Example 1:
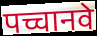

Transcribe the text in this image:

पच्चानवे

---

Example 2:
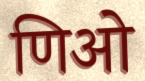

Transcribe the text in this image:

णिओ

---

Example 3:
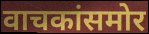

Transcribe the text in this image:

वाचकांसमोर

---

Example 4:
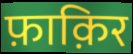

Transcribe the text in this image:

फ़ाक़िर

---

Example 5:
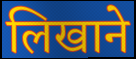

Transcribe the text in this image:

लिखाने